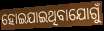
ହୋଇଯାଇଥିବାଯୋଗୁଁ